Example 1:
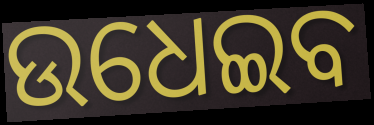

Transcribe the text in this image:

ଉଧେଇବ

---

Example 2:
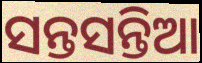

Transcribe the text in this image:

ସନ୍ତସନ୍ତିଆ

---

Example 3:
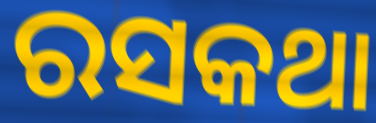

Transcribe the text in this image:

ରସକଥା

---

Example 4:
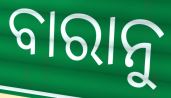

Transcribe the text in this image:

ବାରାନୁ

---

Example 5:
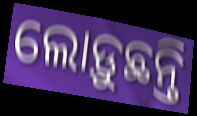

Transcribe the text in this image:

ଲୋଡ଼ୁଛନ୍ତି